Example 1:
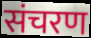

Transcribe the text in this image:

संचरण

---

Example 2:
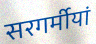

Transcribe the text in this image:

सरगर्मीयां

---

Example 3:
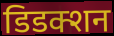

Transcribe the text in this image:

डिडक्शन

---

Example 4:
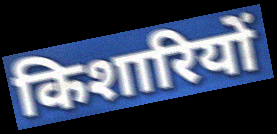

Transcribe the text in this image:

किशारियों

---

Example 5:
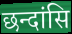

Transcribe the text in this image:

छन्दांसि